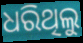
ଧରିଥିଲୁ